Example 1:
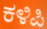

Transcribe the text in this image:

ಕಳಿಪಿ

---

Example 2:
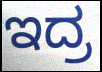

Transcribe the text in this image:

ಇದ್ರ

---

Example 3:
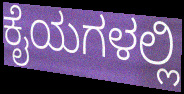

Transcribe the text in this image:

ಕೈಯಗಳಲ್ಲಿ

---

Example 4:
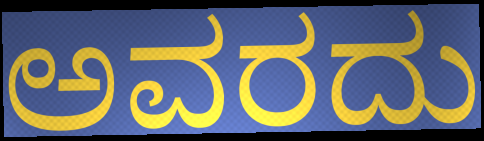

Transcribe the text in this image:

ಅವರದು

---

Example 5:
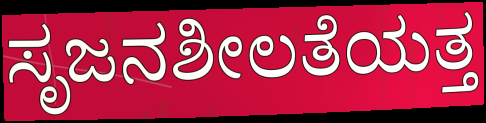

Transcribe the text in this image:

ಸೃಜನಶೀಲತೆಯತ್ತ